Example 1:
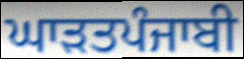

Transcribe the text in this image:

ਘਾੜਤਪੰਜਾਬੀ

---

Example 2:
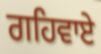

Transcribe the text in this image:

ਗਹਿਵਾਏ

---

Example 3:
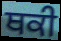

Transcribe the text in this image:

ਥਕੀ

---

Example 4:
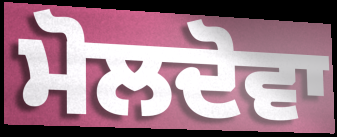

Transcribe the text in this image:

ਮੋਲਦੋਵਾ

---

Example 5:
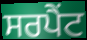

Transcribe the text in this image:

ਸਰਪੈਂਟ